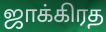
ஜாக்கிரத